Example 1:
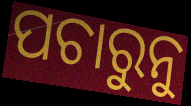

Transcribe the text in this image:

ପଚାରୁନୁ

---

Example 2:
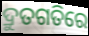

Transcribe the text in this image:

ଦ୍ରୁତଗତିରେ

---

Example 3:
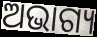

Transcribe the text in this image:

ଅଭାଗ୍ୟ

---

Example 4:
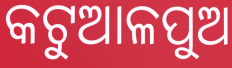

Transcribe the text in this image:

କଟୁଆଳପୁଅ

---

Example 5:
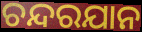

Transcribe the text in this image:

ଚନ୍ଦରଯାନ